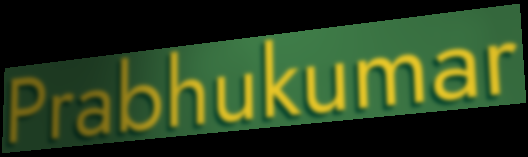
Prabhukumar